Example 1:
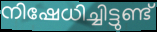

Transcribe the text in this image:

നിഷേധിച്ചിട്ടുണ്ട്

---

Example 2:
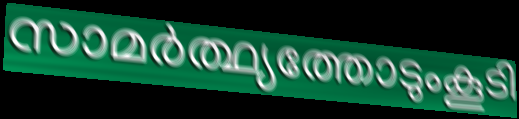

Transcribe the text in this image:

സാമർത്ഥ്യത്തോടുംകൂടി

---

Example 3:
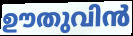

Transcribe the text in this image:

ഊതുവിൻ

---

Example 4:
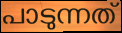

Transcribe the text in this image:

പാടുന്നത്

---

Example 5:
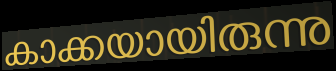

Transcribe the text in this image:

കാക്കയായിരുന്നു